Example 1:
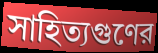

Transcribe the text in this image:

সাহিত্যগুণের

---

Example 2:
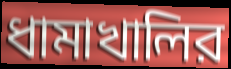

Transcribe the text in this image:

ধামাখালির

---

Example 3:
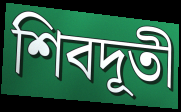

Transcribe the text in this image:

শিবদূতী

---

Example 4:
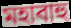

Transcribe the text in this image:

মহাবাহু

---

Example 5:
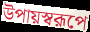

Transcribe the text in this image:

উপায়স্বরূপে